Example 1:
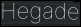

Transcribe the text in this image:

Hegade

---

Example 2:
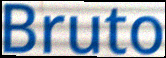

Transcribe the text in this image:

Bruto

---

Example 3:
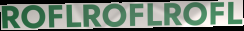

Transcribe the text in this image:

ROFLROFLROFL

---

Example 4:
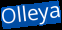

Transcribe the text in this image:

Olleya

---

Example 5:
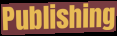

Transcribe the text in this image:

Publishing